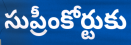
సుప్రీంకోర్టుకు